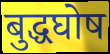
बुद्धघोष